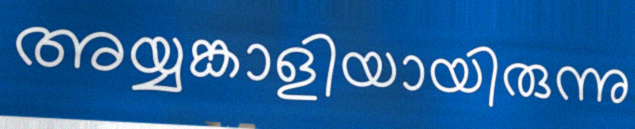
അയ്യങ്കാളിയായിരുന്നു